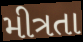
મીત્રતા